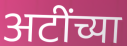
अटींच्या